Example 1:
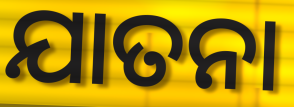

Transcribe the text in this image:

ଯାତନା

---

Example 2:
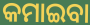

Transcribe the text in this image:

କମାଇବା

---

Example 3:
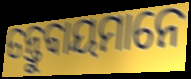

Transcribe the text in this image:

ତନ୍ତୁବାୟମାନେ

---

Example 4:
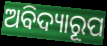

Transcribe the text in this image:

ଅବିଦ୍ୟାରୂପ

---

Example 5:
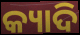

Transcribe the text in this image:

କ୍ୟାଦି